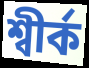
শ্বীৰ্ক